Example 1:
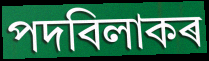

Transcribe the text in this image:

পদবিলাকৰ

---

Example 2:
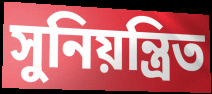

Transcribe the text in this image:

সুনিয়ন্ত্ৰিত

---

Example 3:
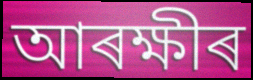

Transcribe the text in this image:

আৰক্ষীৰ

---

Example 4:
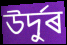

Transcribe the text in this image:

উৰ্দুৰ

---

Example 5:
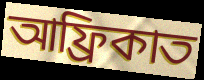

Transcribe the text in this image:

আফ্ৰিকাত